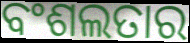
ବଂଶଲତାର